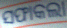
ସଫାକଲା